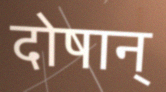
दोषान्